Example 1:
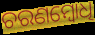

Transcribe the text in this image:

ଚରଣମ୍ବୋଧି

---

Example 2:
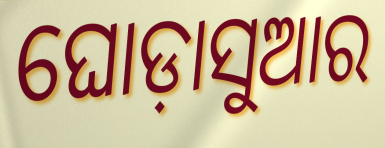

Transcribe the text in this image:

ଘୋଡ଼ାସୁଆର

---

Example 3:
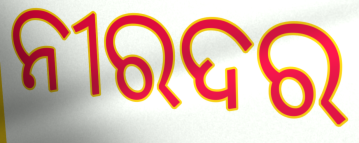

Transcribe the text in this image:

ନୀରଦର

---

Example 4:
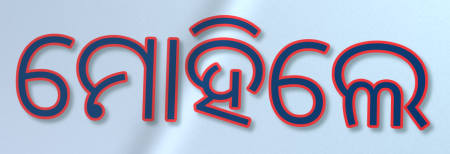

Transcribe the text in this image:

ମୋହିଲେ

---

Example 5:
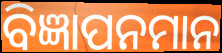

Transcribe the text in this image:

ବିଜ୍ଞାପନମାନ